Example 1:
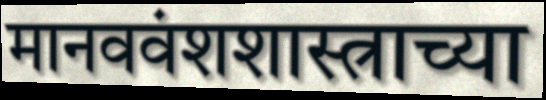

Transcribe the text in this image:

मानववंशशास्त्राच्या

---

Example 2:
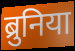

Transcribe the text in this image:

ब्रुनिया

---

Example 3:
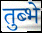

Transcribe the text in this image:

तुब्भे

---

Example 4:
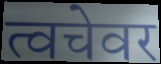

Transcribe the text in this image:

त्वचेवर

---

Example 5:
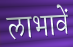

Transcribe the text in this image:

लाभावें